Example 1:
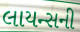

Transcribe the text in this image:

લાયન્સની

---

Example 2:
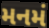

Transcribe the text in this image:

મનમં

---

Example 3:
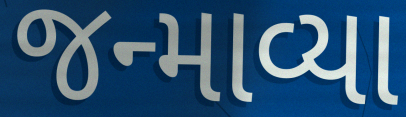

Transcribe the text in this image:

જન્માવ્યા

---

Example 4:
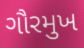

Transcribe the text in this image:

ગૌરમુખ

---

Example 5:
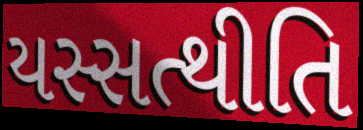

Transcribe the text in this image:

યસ્સત્થીતિ